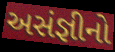
અસંજ્ઞીનો